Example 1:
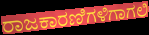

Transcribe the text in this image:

ರಾಜಕಾರಣಿಗಳಿಗಾಗಲಿ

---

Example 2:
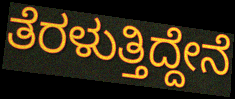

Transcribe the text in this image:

ತೆರಳುತ್ತಿದ್ದೇನೆ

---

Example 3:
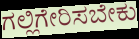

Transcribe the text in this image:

ಗಲ್ಲಿಗೇರಿಸಬೇಕು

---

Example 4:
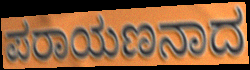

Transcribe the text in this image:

ಪರಾಯಣನಾದ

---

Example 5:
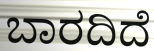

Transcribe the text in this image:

ಬಾರದಿದೆ